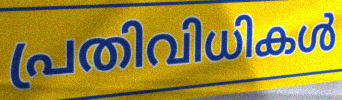
പ്രതിവിധികൾ